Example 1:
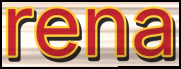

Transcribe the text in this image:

rena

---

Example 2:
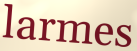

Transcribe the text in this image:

larmes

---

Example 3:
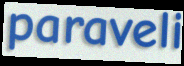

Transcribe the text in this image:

paraveli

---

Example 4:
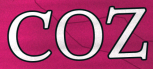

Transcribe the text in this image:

COZ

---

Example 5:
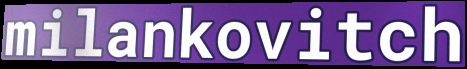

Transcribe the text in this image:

milankovitch